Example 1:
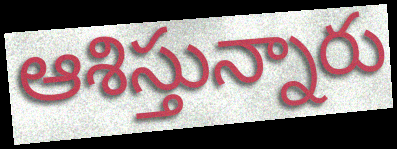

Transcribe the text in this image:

ఆశిస్తున్నారు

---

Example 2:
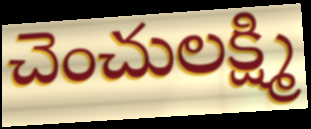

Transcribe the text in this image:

చెంచులక్ష్మి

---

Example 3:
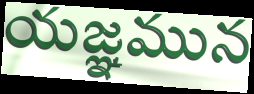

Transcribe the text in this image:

యజ్ఞమున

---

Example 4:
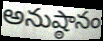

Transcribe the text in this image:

అనుష్ఠానం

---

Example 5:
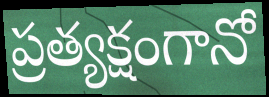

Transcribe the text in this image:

ప్రత్యక్షంగానో